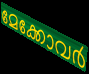
മേക്കോവർ